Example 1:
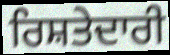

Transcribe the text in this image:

ਰਿਸ਼ਤੇਦਾਰੀ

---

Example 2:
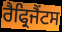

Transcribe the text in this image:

ਰੈਫ੍ਰਿਜੈਂਟਸ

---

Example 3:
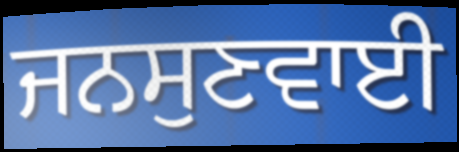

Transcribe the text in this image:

ਜਨਸੁਣਵਾਈ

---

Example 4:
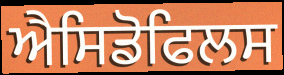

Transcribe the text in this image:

ਐਸਿਡੋਫਿਲਸ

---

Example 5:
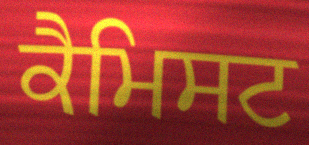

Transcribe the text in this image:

ਕੈਮਿਸਟ